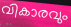
വികാരവും